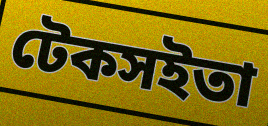
টেকসইতা